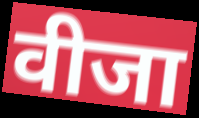
वीजा